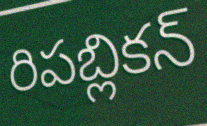
రిపబ్లికన్